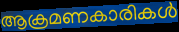
ആക്രമണകാരികൾ